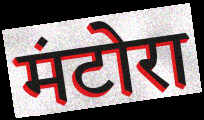
मंटोरा